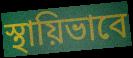
স্থায়িভাবে